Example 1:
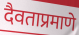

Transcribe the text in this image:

दैवताप्रमाणे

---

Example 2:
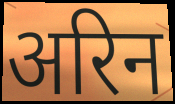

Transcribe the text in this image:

अरिन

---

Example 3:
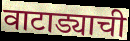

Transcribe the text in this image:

वाटाड्याची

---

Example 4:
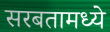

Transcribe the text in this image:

सरबतामध्ये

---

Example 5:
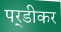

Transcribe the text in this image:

पर्डीकर